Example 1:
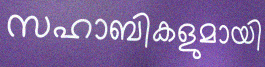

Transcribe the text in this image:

സഹാബികളുമായി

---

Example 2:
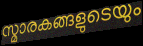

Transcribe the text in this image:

സ്മാരകങ്ങളുടെയും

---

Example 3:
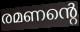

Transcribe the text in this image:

രമണന്റെ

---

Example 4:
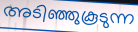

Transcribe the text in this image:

അടിഞ്ഞുകൂടുന്ന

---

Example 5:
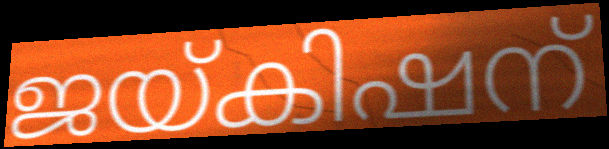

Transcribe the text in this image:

ജയ്കിഷന്